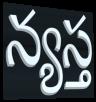
న్యస్త